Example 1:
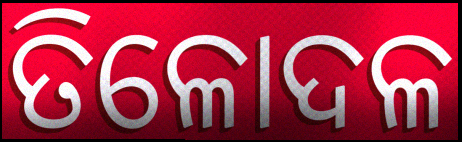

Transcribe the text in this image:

ତିଳୋଦଳ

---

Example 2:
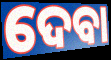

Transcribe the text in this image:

ଦେବା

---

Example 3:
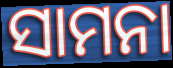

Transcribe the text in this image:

ସାମନା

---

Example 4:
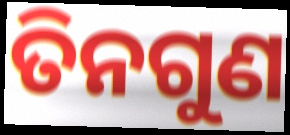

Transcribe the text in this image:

ତିନଗୁଣ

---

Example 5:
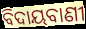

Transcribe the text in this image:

ବିଦାୟବାଣୀ